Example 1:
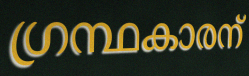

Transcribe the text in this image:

ഗ്രന്ഥകാരന്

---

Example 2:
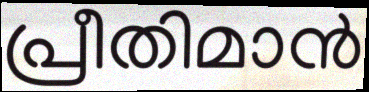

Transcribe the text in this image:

പ്രീതിമാൻ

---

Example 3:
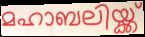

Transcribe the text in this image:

മഹാബലിയ്ക്ക്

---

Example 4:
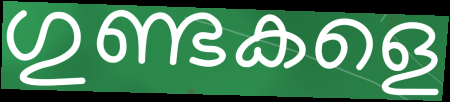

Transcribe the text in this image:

ഗുണ്ടകളെ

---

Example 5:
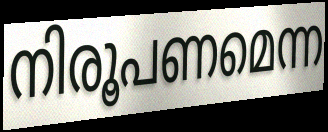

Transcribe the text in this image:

നിരൂപണമെന്ന